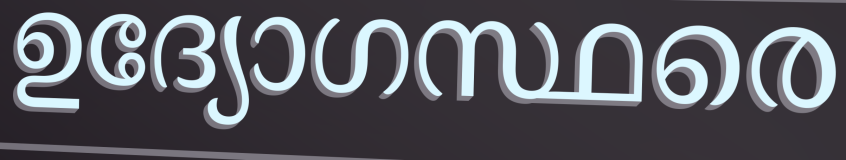
ഉദ്യോഗസ്ഥരെ